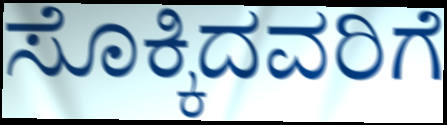
ಸೊಕ್ಕಿದವರಿಗೆ